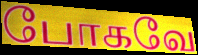
போகவே